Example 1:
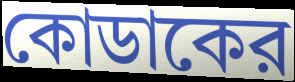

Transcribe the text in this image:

কোডাকের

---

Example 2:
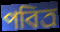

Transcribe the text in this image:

পবিত্র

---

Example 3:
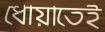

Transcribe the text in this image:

ধোয়াতেই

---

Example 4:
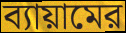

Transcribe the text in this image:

ব্যায়ামের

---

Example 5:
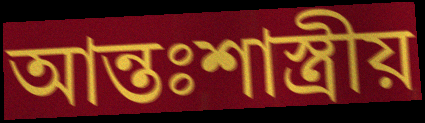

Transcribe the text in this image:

আন্তঃশাস্ত্রীয়